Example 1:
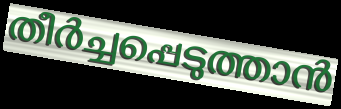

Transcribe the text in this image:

തീർച്ചപ്പെടുത്താൻ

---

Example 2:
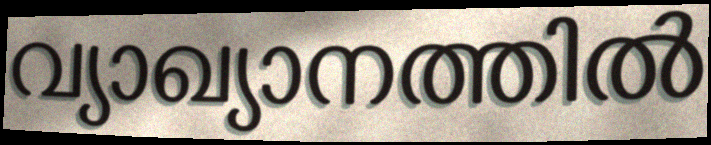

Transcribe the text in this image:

വ്യാഖ്യാനത്തിൽ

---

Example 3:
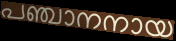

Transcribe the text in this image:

പഞ്ചാനനായ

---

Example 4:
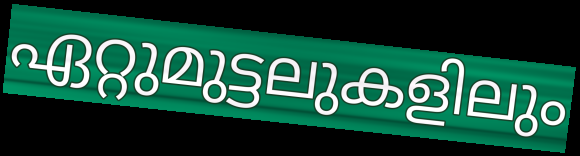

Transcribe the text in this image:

ഏറ്റുമുട്ടലുകളിലും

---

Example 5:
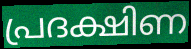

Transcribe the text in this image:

പ്രദക്ഷിണ